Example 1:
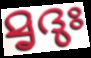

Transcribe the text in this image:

മൃദുഃ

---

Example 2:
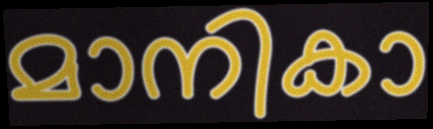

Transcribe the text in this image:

മാനികാ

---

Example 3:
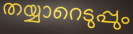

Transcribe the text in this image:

തയ്യാറെടുപ്പും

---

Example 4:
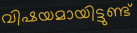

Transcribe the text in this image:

വിഷയമായിട്ടുണ്ട്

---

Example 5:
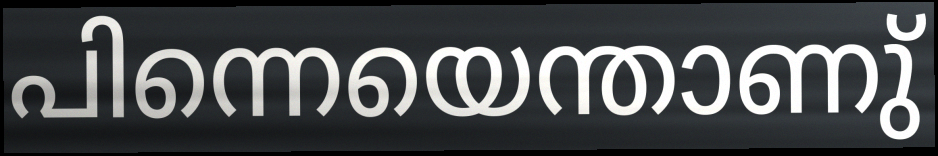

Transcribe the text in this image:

പിന്നെയെന്താണു്